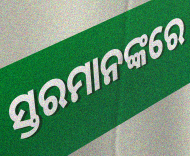
ସ୍ତରମାନଙ୍କରେ